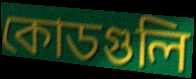
কোডগুলি